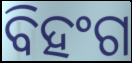
ବିହଂଗ